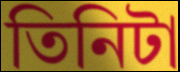
তিনিটা